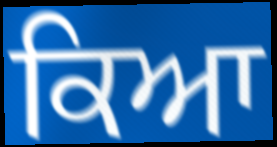
ਕਿਆ